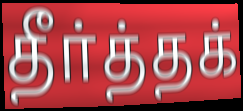
தீர்த்தக்